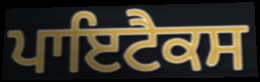
ਪਾਇਟੈਕਸ